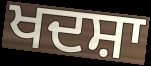
ਖਦਸ਼ਾ